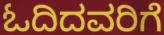
ಓದಿದವರಿಗೆ